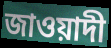
জাওয়াদী